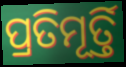
ପ୍ରତିମୂର୍ତ୍ତି